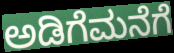
ಅಡಿಗೆಮನೆಗೆ